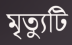
মৃত্যুটি